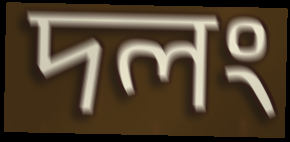
দলং